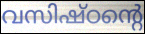
വസിഷ്ഠന്റെ